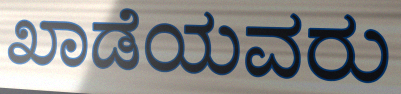
ಖಾಡೆಯವರು